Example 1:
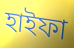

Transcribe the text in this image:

হাইফা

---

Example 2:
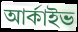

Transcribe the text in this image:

আর্কাইভ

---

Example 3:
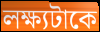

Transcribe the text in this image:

লক্ষ্যটাকে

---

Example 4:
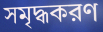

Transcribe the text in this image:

সমৃদ্ধকরণ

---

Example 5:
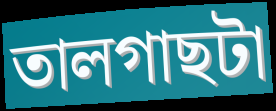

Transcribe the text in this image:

তালগাছটা